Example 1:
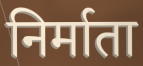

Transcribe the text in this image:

निर्माता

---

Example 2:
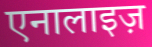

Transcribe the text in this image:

एनालाइज़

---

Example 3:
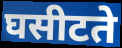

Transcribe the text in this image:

घसीटते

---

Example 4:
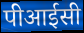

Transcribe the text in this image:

पीआईसी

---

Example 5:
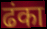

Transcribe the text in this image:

ढंका